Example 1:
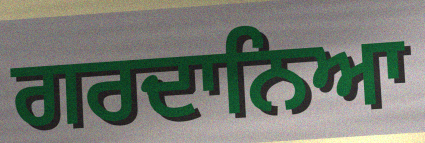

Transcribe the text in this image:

ਗਰਦਾਨਿਆ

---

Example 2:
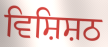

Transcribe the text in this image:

ਵਿਸ਼ਿਸ਼ਠ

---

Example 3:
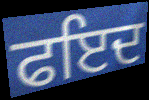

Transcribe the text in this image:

ਫਇਦ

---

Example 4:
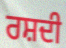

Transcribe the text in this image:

ਰਸ਼ਦੀ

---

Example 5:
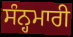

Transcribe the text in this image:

ਸੰਨ੍ਹਮਾਰੀ